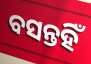
ବସନ୍ତହିଁ